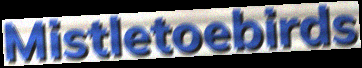
Mistletoebirds